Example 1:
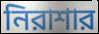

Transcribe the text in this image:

নিরাশার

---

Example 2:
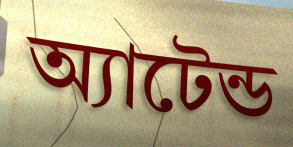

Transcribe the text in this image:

অ্যাটেন্ড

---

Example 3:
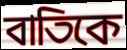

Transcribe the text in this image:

বাতিকে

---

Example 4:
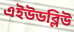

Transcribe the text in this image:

এইউডব্লিউ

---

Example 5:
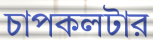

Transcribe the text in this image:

চাপকলটার